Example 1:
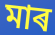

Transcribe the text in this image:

মাৰ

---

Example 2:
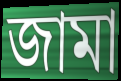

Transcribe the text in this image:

জামা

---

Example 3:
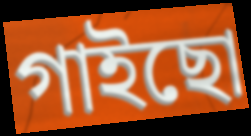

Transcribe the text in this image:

গাইছো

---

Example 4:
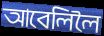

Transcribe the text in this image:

আবেলিলৈ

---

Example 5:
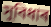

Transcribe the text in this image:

সুবিধাৰ